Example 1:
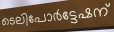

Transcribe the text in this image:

ടെലിപോർട്ടേഷന്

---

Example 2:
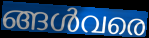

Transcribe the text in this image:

ങ്ങൾവരെ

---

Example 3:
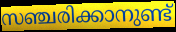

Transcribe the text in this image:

സഞ്ചരിക്കാനുണ്ട്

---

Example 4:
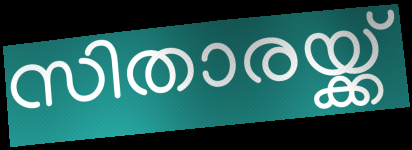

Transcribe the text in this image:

സിതാരയ്ക്ക്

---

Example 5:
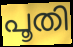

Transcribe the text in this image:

പൂതി